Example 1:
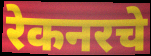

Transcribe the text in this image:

रेकनरचे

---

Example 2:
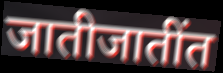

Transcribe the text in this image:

जातीजातींत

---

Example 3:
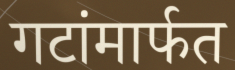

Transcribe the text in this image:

गटांमार्फत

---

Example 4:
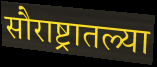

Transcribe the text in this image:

सौराष्ट्रातल्या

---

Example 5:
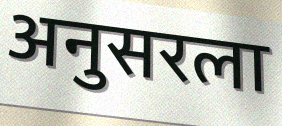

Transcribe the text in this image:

अनुसरला